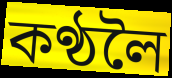
কণ্ঠলৈ